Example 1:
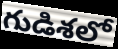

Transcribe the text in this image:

గుడిశలో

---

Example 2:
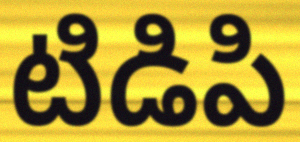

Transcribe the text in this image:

టిడిపి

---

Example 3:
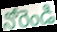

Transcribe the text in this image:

నోరెండి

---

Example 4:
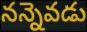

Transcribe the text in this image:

నన్నెవడు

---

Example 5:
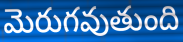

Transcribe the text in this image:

మెరుగవుతుంది